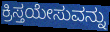
ಕ್ರಿಸ್ತಯೇಸುವನ್ನು